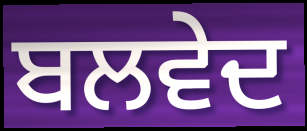
ਬਲਵੇਦ